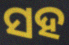
ସହ